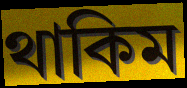
থাকিম